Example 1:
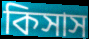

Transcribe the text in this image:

কিসাস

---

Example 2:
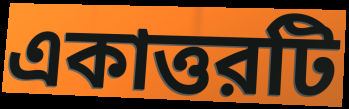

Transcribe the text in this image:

একাত্তরটি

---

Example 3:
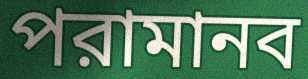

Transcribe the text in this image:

পরামানব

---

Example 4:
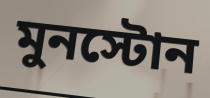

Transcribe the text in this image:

মুনস্টোন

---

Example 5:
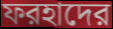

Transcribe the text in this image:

ফরহাদের